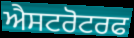
ਐਸਟਰੋਟਰਫ